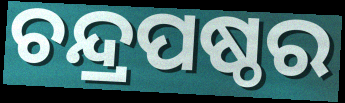
ଚନ୍ଦ୍ରପଷ୍ଠର